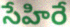
సేహిరే